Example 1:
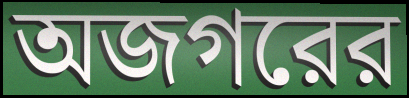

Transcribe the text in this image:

অজগরের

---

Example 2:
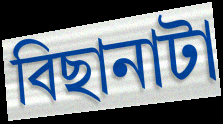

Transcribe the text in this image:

বিছানাটা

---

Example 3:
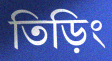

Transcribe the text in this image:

তিড়িং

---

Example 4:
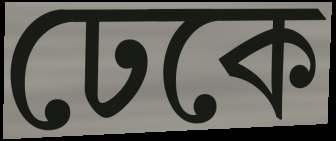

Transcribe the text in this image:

ঢেকে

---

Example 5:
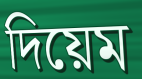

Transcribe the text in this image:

দিয়েম